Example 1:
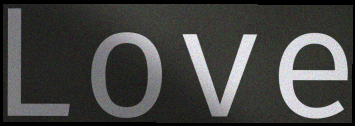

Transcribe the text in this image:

Love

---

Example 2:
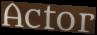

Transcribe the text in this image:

Actor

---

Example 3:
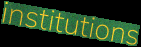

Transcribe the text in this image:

institutions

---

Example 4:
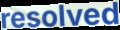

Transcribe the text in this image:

resolved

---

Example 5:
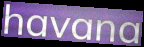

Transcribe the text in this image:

havana